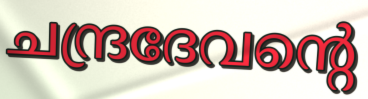
ചന്ദ്രദേവന്റെ